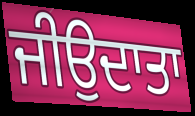
ਜੀਉਦਾਤਾ